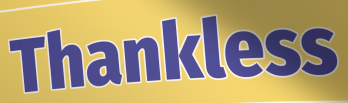
Thankless